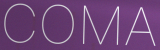
COMA